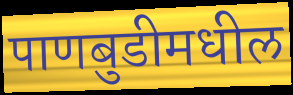
पाणबुडीमधील